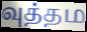
வுத்தம